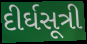
દીર્ઘસૂત્રી